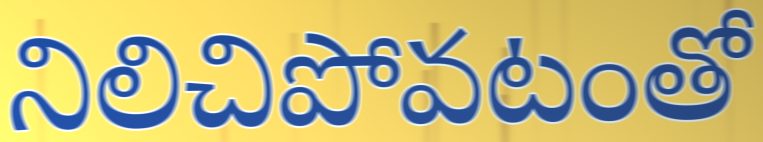
నిలిచిపోవటంతో